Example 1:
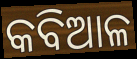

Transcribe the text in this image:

କବିଆଳ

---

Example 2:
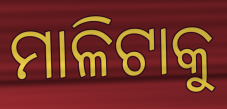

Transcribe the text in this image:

ମାଳିଟାକୁ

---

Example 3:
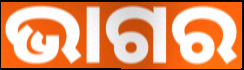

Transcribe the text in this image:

ଭାଗର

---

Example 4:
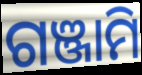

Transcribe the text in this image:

ଗଞ୍ଜାମି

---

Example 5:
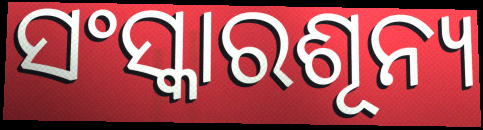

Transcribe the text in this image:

ସଂସ୍କାରଶୂନ୍ୟ